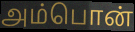
அம்பொன்